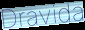
Dravida